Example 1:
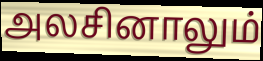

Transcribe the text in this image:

அலசினாலும்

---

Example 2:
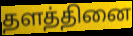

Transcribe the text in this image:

தளத்தினை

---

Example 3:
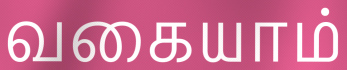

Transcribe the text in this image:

வகையாம்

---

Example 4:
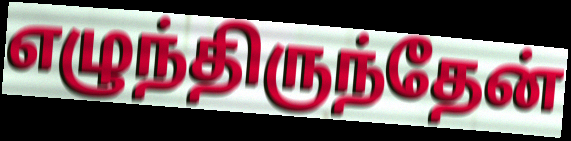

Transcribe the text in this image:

எழுந்திருந்தேன்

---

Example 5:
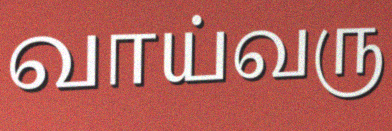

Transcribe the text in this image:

வாய்வரு